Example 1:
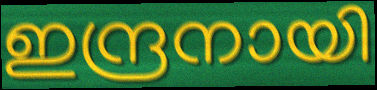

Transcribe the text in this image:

ഇന്ദ്രനായി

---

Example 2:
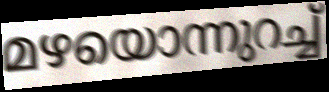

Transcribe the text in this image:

മഴയൊന്നുറച്ച്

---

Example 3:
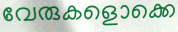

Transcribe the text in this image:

വേരുകളൊക്കെ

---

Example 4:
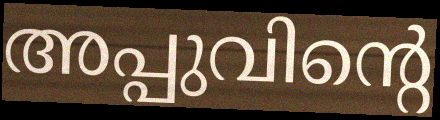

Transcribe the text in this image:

അപ്പുവിന്റെ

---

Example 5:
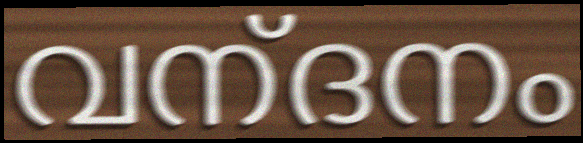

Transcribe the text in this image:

വന്‌ദനം